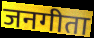
जनगीता